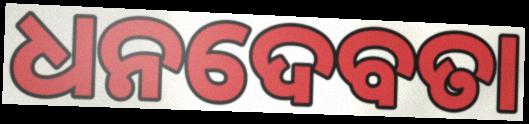
ଧନଦେବତା